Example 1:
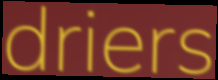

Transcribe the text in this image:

driers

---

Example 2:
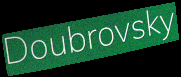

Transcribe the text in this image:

Doubrovsky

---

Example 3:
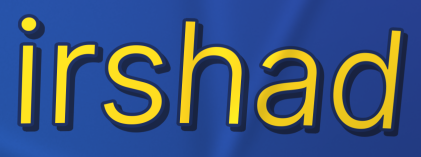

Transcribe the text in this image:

irshad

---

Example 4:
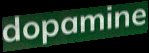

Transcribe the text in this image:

dopamine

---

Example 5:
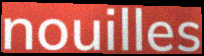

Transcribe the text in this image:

nouilles